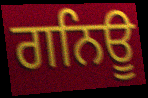
ਗਨਿਊ